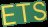
ETS